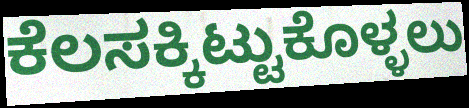
ಕೆಲಸಕ್ಕಿಟ್ಟುಕೊಳ್ಳಲು